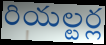
రియల్టర్ల